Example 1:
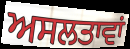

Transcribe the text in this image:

ਅਸਲਤਾਵਾਂ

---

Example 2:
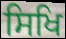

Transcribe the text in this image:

ਸਿਖਿ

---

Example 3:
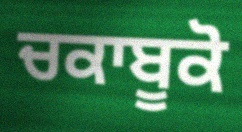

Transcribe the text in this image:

ਚਕਾਬੂਕੋ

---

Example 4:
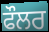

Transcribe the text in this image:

ਫੌਲਰ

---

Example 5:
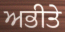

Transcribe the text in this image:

ਅਭੀਤੇ